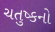
ચતુષ્કનો